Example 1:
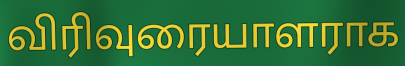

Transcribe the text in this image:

விரிவுரையாளராக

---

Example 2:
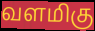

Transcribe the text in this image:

வளமிகு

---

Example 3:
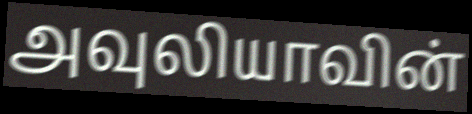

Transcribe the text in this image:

அவுலியாவின்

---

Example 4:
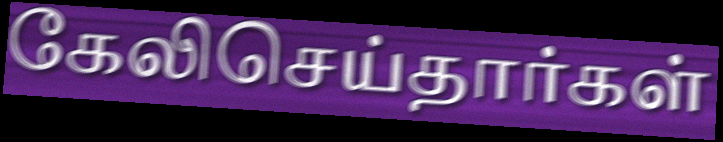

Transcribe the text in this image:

கேலிசெய்தார்கள்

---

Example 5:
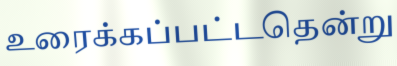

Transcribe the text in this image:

உரைக்கப்பட்டதென்று